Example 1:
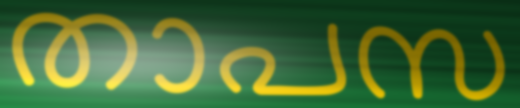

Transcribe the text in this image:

താപസ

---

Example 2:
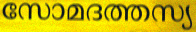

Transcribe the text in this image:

സോമദത്തസ്യ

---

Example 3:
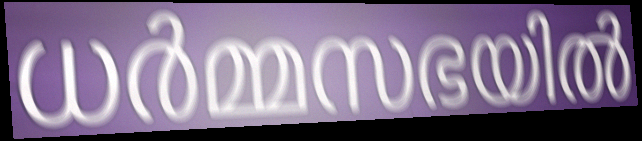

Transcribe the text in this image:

ധർമ്മസഭയിൽ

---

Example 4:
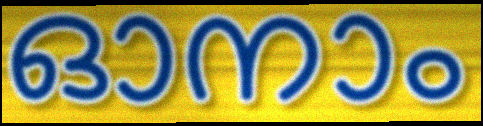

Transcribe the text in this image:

ഓനാം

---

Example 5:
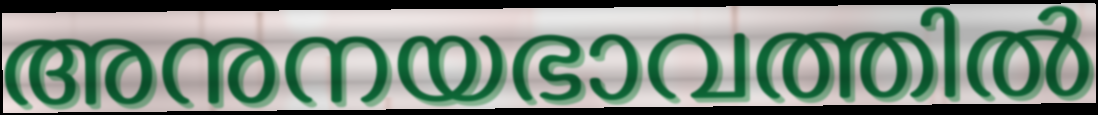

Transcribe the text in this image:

അനുനയഭാവത്തിൽ